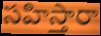
సహిస్తారా